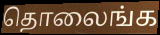
தொலைங்க